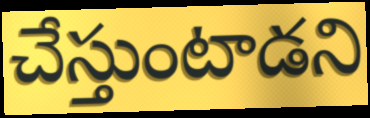
చేస్తుంటాడని